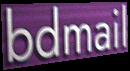
bdmail